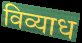
विव्याध